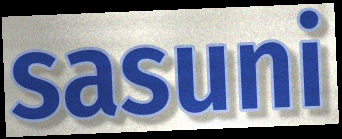
sasuni